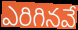
ఎరిగినవే